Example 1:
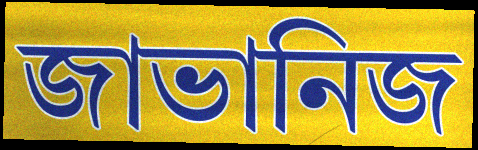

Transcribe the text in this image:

জাভানিজ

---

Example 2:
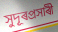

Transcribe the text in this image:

সুদূৰপ্ৰসাৰী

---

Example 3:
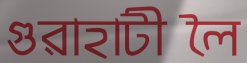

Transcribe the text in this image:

গুৱাহাটীলৈ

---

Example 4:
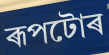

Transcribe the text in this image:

ৰূপটোৰ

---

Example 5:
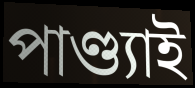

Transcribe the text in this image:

পাণ্ড্যাই